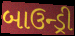
બાઉન્ડ્રી